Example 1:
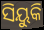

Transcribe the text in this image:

ସିୟୁକି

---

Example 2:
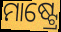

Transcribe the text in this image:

ମାଷ୍ଟ୍ରେ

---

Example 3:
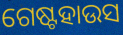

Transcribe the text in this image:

ଗେଷ୍ଟହାଉସ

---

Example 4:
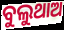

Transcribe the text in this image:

ବୁଲୁଥାଅ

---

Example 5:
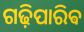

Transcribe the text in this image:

ଗଢ଼ିପାରିଵ